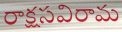
రాక్షసవిరామ